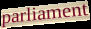
parliament